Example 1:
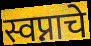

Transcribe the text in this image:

स्वप्नाचे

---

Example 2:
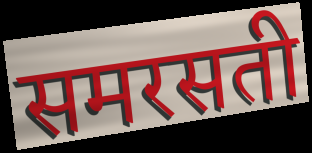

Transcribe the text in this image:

समरसती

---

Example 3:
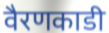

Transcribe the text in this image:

वैरणकाडी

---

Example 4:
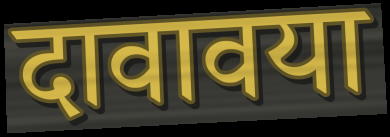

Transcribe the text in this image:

दावावया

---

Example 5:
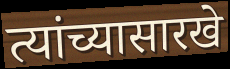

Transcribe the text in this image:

त्यांच्यासारखे